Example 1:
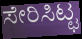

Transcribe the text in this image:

ಸೇರಿಸಿಟ್ಟ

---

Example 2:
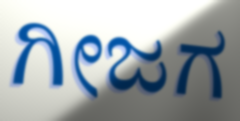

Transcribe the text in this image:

ಗೀಜಗ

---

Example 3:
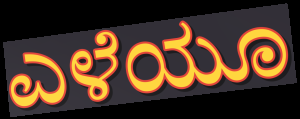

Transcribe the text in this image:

ಎಳೆಯೂ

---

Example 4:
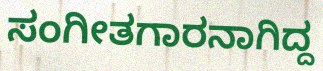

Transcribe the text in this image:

ಸಂಗೀತಗಾರನಾಗಿದ್ದ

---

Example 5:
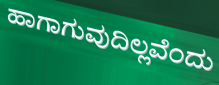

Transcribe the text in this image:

ಹಾಗಾಗುವುದಿಲ್ಲವೆಂದು